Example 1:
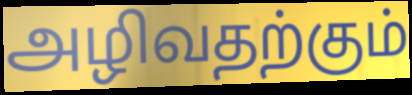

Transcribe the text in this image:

அழிவதற்கும்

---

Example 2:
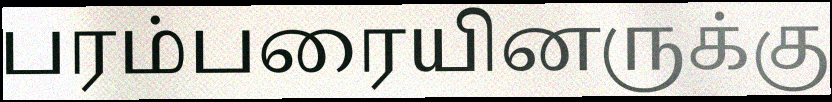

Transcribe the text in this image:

பரம்பரையினருக்கு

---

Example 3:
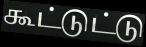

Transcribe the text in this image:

கூட்டுட்டு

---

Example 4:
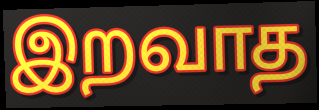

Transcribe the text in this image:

இறவாத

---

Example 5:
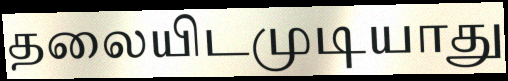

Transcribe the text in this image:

தலையிடமுடியாது